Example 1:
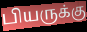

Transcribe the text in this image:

பியருக்கு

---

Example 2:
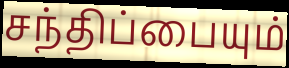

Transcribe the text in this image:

சந்திப்பையும்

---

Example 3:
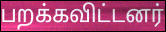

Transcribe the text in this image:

பறக்கவிட்டனர்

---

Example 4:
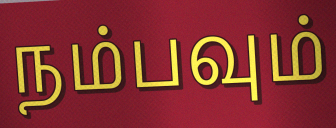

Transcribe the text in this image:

நம்பவும்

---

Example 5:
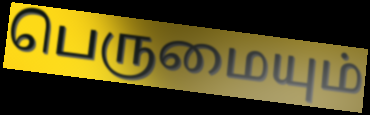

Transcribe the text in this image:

பெருமையும்